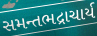
સમન્તભદ્રાચાર્ય